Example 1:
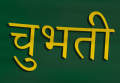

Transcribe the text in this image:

चुभती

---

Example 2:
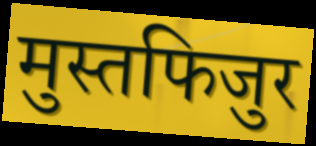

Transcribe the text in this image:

मुस्तफिजुर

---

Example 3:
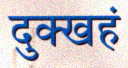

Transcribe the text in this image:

दुक्खहं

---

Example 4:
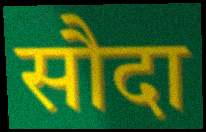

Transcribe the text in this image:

सौदा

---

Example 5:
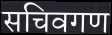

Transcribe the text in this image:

सचिवगण